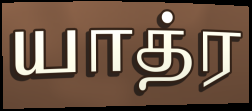
யாத்ர